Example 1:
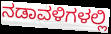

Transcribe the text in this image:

ನಡಾವಳಿಗಳಲ್ಲಿ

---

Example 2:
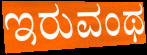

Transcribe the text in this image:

ಇರುವಂಥ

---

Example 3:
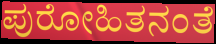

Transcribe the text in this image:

ಪುರೋಹಿತನಂತೆ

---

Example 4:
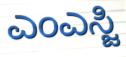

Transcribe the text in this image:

ಎಂಎಸ್ಜಿ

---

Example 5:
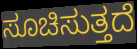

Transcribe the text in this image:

ಸೂಚಿಸುತ್ತದೆ